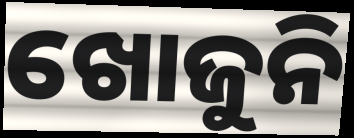
ଖୋଜୁନି